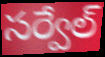
సర్వేల్